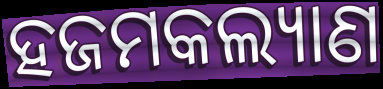
ହଜମକଲ୍ୟାଣ